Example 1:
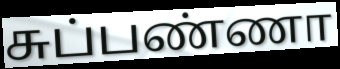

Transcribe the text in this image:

சுப்பண்ணா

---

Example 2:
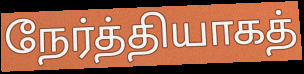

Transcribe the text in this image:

நேர்த்தியாகத்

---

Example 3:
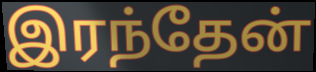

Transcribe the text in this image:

இரந்தேன்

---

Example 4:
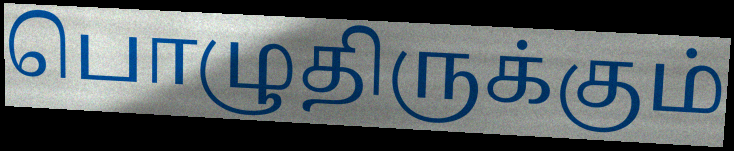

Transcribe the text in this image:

பொழுதிருக்கும்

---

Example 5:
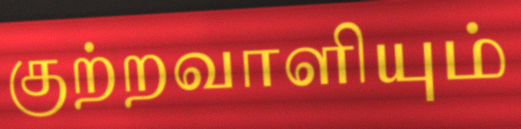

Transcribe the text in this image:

குற்றவாளியும்